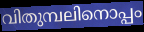
വിതുമ്പലിനൊപ്പം